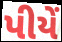
પીયેં